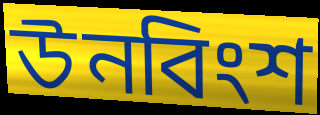
উনবিংশ